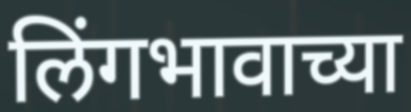
लिंगभावाच्या